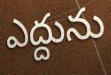
ఎద్దును